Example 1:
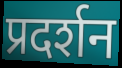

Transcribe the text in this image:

प्रदर्शन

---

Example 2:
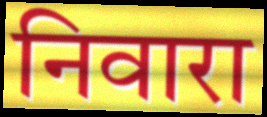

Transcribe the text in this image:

निवारा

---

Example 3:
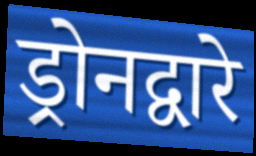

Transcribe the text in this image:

ड्रोनद्वारे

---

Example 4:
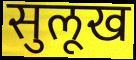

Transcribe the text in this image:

सुलूख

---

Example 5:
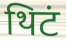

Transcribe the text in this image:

थिटं